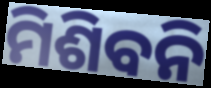
ମିଶିବନି